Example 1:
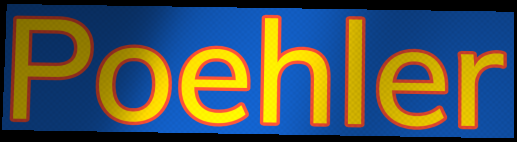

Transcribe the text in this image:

Poehler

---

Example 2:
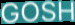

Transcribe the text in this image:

GOSH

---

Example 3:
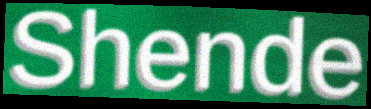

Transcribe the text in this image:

Shende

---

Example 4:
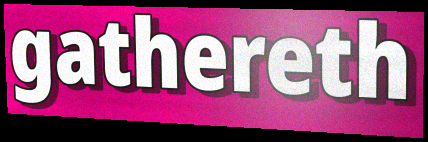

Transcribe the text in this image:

gathereth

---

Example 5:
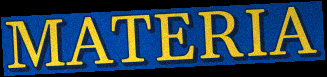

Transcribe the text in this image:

MATERIA